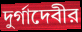
দুর্গাদেবীর